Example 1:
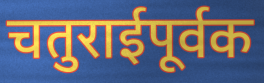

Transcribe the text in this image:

चतुराईपूर्वक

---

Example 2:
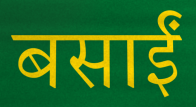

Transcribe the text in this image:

बसाईं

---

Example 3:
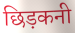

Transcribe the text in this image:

छिड़कनी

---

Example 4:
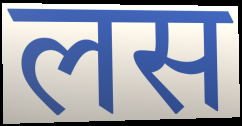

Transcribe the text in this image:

लस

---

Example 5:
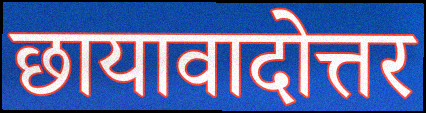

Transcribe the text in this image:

छायावादोत्तर